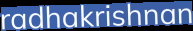
radhakrishnan